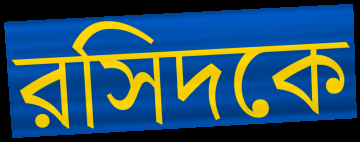
রসিদকে